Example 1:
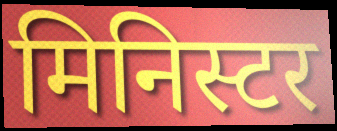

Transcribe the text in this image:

मिनिस्टर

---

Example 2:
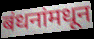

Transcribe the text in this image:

बंधनांमधून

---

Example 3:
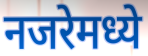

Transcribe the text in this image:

नजरेमध्ये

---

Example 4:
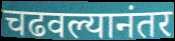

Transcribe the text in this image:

चढवल्यानंतर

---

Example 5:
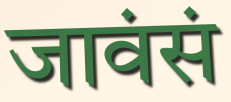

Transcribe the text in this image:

जावंसं